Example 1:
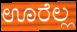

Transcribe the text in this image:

ಊರೆಲ್ಲ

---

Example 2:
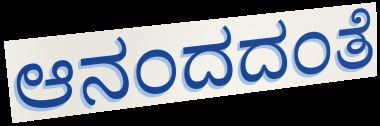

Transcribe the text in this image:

ಆನಂದದಂತೆ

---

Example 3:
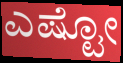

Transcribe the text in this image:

ಎಷ್ಟೋ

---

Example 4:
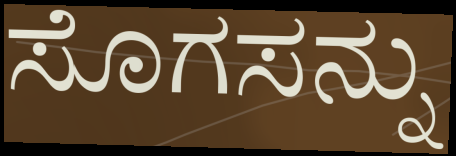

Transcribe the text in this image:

ಸೊಗಸನ್ನು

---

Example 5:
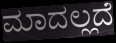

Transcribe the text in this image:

ಮಾದಲ್ಲದೆ